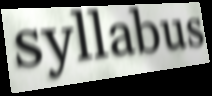
syllabus